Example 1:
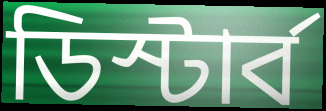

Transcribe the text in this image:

ডিস্টার্ব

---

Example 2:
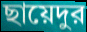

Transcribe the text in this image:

ছায়েদুর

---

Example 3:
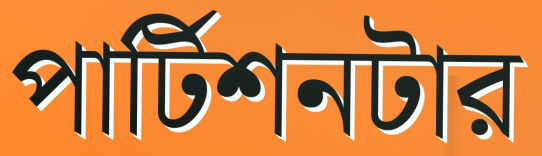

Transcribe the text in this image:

পার্টিশনটার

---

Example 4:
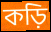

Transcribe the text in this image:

কড়ি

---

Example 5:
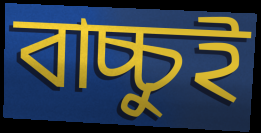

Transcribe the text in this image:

বাচ্চুই